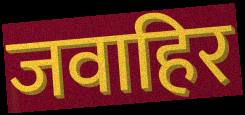
जवाहिर